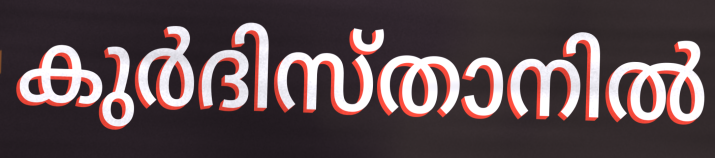
കുർദിസ്താനിൽ